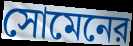
সোমেনের